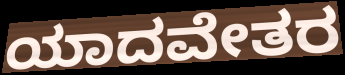
ಯಾದವೇತರ